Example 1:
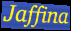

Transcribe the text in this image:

Jaffina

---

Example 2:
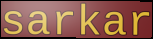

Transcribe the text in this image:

sarkar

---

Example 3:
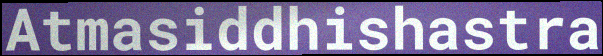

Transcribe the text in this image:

Atmasiddhishastra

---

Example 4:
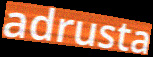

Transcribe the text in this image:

adrusta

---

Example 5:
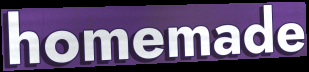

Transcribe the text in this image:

homemade